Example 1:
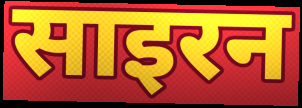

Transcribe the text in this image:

साइरन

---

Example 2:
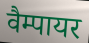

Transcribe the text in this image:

वैम्पायर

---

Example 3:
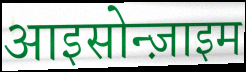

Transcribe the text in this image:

आइसोन्ज़ाइम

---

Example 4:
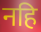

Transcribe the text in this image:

नहि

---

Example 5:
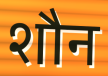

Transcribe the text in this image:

शौन